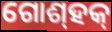
ଗୋଶ୍‍ହକ୍